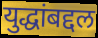
युद्धांबद्दल